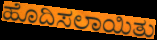
ಹೊದಿಸಲಾಯಿತು